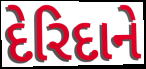
દેરિદાને